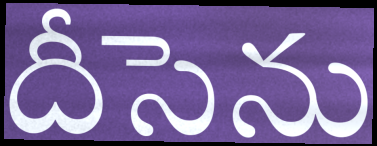
దీసెను